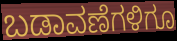
ಬಡಾವಣೆಗಳಿಗೂ